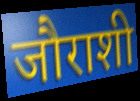
जौराशी